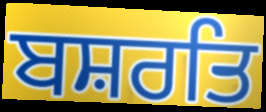
ਬਸ਼ਰਤਿ